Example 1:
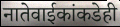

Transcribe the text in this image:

नातेवाईकांकडेही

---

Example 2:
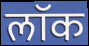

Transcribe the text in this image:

लॉक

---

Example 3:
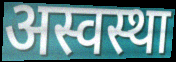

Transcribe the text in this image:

अस्वस्था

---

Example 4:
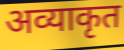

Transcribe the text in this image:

अव्याकृत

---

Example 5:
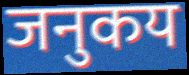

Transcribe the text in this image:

जनुकय